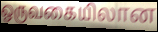
ஒருவகையிலான